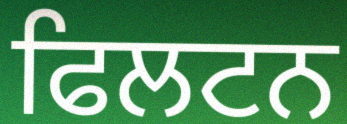
ਫਿਲਟਨ